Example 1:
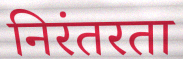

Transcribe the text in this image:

निरंतरता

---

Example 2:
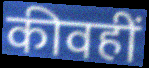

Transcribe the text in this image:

कीवहीं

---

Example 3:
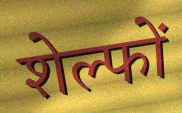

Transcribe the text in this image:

शेल्फों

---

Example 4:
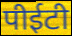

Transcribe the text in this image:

पीईटी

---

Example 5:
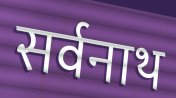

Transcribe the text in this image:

सर्वनाथ